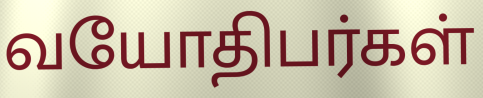
வயோதிபர்கள்